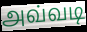
அவ்வடி